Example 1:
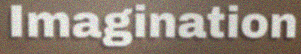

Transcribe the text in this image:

Imagination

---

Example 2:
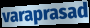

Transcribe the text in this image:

varaprasad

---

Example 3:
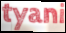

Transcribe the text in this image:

tyani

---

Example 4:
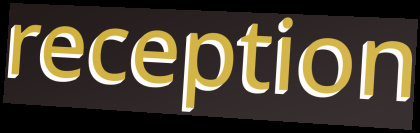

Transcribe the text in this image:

reception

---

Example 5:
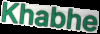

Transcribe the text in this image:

Khabhe